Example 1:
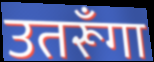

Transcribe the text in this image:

उतरूँगा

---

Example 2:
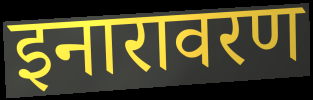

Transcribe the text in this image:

इनारावरण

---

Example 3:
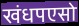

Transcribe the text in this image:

खंधपएसो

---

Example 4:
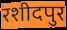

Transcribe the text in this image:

रशीदपुर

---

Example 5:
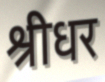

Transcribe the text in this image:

श्रीधर